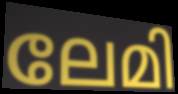
ലേമി